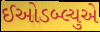
ઈઓડબ્લ્યુએ